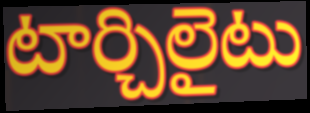
టార్చిలైటు